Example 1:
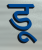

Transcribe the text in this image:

डू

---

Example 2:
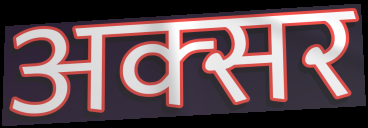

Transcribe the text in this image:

अक्‍सर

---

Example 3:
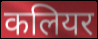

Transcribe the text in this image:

कलियर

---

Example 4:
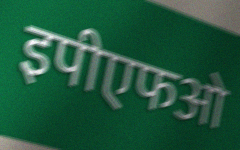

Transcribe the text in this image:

इपीएफओ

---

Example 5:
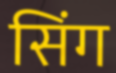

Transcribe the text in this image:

सिंग